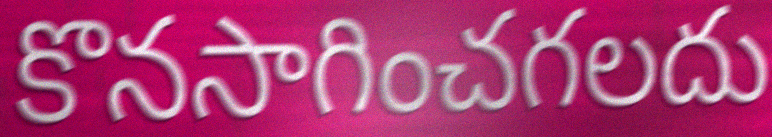
కొనసాగించగలదు